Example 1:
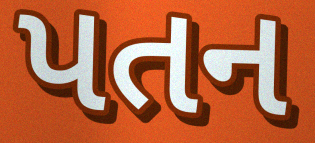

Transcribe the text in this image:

પતન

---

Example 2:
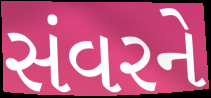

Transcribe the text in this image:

સંવરને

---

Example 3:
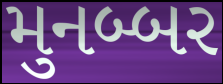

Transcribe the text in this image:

મુનબ્બર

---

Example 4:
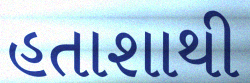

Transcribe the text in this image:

હતાશાથી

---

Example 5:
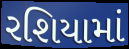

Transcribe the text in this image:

રશિયામાં